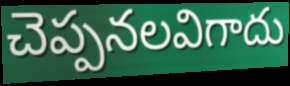
చెప్పనలవిగాదు